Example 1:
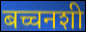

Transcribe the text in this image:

बच्चनशी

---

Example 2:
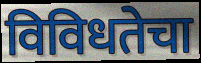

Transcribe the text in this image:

विविधतेचा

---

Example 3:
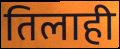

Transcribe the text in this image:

तिलाही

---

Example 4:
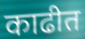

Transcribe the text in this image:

काढीत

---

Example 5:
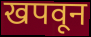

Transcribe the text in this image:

खपवून